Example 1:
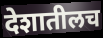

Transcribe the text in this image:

देशातीलच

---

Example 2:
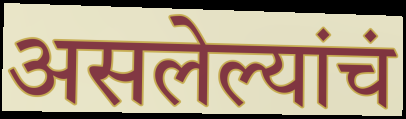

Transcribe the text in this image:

असलेल्यांचं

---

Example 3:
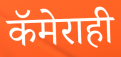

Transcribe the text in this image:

कॅमेराही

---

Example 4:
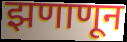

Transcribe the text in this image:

झणाणून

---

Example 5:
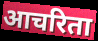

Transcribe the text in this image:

आचरिता